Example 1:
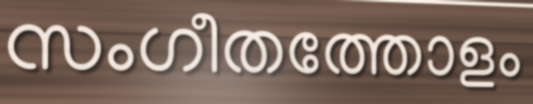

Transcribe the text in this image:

സംഗീതത്തോളം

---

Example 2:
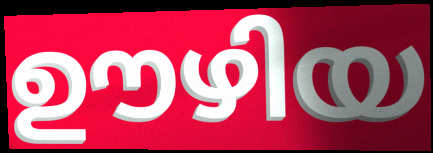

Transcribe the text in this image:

ഊഴിയ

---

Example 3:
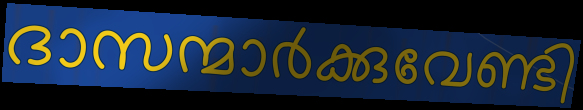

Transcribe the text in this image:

ദാസന്മാർക്കുവേണ്ടി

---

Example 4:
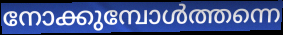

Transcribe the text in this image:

നോക്കുമ്പോൾത്തന്നെ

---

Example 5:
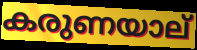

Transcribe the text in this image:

കരുണയാല്